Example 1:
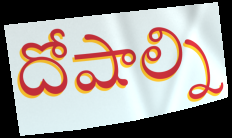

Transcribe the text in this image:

దోషాల్ని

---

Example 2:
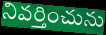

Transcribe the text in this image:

నివర్తించును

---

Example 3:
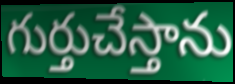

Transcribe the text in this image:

గుర్తుచేస్తాను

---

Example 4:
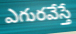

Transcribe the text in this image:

ఎగురవేస్తే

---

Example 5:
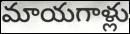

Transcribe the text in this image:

మాయగాళ్లు